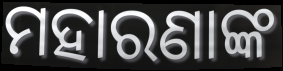
ମହାରଣାଙ୍କ